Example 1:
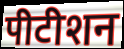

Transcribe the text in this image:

पीटीशन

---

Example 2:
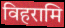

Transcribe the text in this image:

विहरामि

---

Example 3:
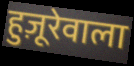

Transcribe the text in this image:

हुज़ूरेवाला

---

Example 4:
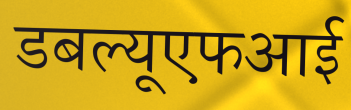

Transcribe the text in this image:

डबल्यूएफआई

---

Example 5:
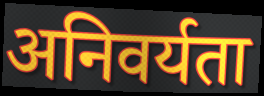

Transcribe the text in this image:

अनिवर्यता